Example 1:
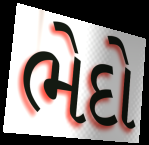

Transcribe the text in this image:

ભેદો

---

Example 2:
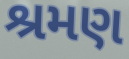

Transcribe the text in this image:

શ્રમણ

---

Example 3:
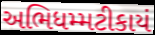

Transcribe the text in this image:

અભિધમ્મટીકાયં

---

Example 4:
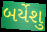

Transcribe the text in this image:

બર્યેશુ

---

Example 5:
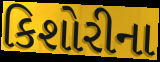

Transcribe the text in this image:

કિશોરીના